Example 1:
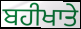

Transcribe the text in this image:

ਬਹੀਖਾਤੇ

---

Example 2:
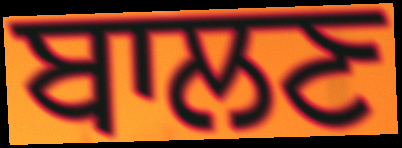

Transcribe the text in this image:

ਬਾਲਣ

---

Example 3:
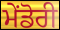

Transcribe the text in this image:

ਮੇਂਡੋਰੀ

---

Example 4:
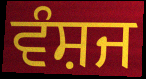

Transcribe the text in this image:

ਵੰਸ਼ਜ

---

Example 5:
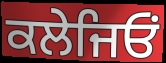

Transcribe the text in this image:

ਕਲੇਜਿਓਂ